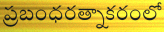
ప్రబంధరత్నాకరంలో